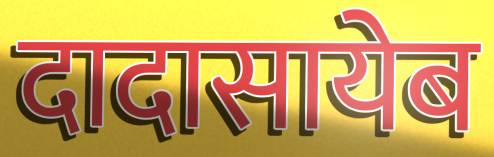
दादासायेब